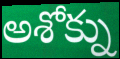
అశోక్ను